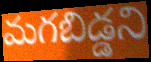
మగబిడ్డని